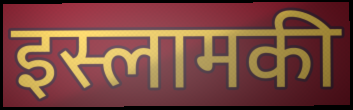
इस्लामकी